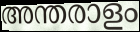
അന്തരാളം